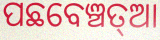
ପଛବେଞ୍ଚତ୍ଆ